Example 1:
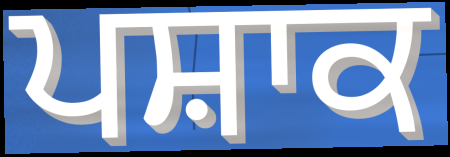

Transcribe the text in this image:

ਪਸ਼ਾਕ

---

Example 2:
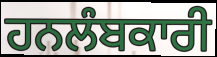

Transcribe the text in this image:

ਹਨਲੰਬਕਾਰੀ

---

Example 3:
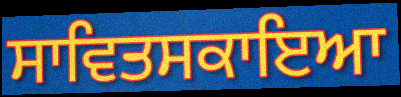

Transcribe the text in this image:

ਸਾਵਿਤਸਕਾਇਆ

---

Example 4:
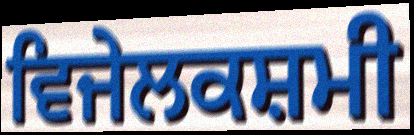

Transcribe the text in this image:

ਵਿਜੇਲਕਸ਼ਮੀ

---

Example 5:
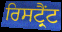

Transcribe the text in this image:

ਰਿਸਟ੍ਰੈਂਟ